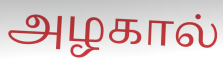
அழகால்